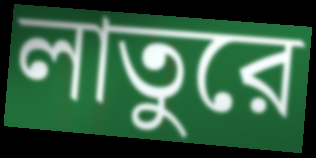
লাতুরে